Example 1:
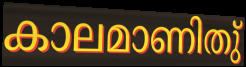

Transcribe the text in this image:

കാലമാണിതു്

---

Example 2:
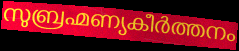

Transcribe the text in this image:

സുബ്രഹ്മണ്യകീർത്തനം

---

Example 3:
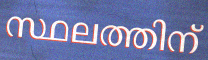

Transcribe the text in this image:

സ്ഥലത്തിന്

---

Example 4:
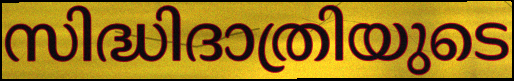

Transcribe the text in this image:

സിദ്ധിദാത്രിയുടെ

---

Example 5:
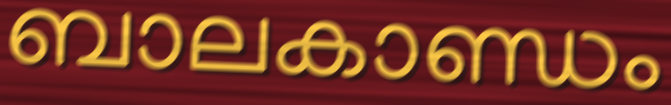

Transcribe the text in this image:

ബാലകാണ്ഡം